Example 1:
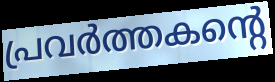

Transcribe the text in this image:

പ്രവർത്തകന്റെ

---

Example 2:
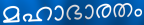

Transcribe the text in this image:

മഹാഭാരതം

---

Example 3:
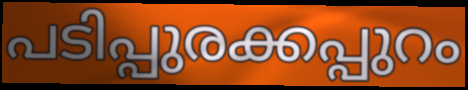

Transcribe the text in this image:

പടിപ്പുരക്കപ്പുറം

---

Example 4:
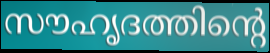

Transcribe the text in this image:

സൗഹൃദത്തിന്റെ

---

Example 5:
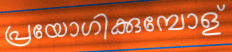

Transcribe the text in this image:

പ്രയോഗിക്കുമ്പോള്